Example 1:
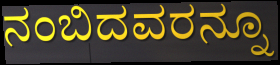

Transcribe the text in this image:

ನಂಬಿದವರನ್ನೂ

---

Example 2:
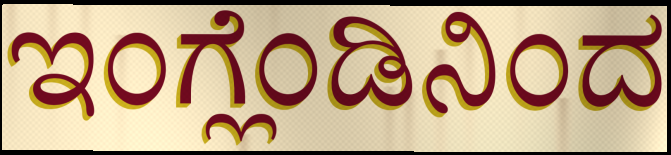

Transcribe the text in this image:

ಇಂಗ್ಲೆಂಡಿನಿಂದ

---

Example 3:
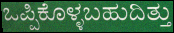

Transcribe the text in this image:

ಒಪ್ಪಿಕೊಳ್ಳಬಹುದಿತ್ತು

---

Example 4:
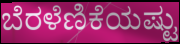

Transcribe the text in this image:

ಬೆರಳೆಣಿಕೆಯಷ್ಟು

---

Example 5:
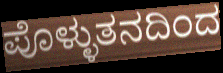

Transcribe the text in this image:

ಪೊಳ್ಳುತನದಿಂದ